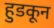
हुडकून